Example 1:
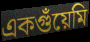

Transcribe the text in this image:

একগুঁয়েমি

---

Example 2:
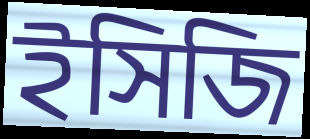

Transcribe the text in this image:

ইসিজি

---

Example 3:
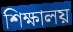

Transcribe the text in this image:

শিক্ষালয়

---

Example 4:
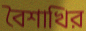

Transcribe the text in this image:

বৈশাখির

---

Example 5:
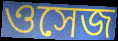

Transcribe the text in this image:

ওসেজ